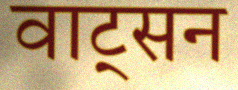
वाट्सन